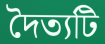
দৈত্যটি